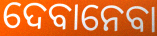
ଦେବାନେବା